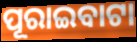
ପୂରାଇବାଟା